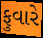
ફુવારે